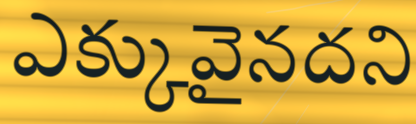
ఎక్కువైనదని